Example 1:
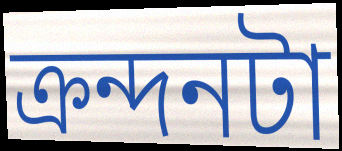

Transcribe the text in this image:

ক্রন্দনটা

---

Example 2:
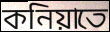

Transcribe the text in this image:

কনিয়াতে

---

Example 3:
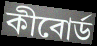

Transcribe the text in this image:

কীবোর্ড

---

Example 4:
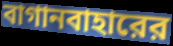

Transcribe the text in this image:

বাগানবাহারের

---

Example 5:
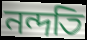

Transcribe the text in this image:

নন্দতি